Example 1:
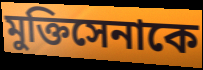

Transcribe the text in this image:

মুক্তিসেনাকে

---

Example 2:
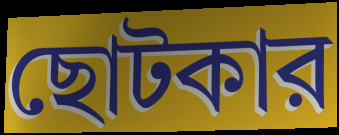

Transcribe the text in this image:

ছোটকার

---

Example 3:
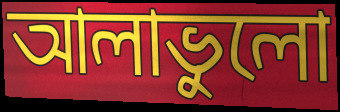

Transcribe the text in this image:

আলাভুলো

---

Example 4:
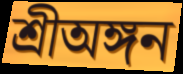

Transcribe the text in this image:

শ্রীঅঙ্গন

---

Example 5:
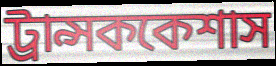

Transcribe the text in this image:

ট্রান্সককেশাস